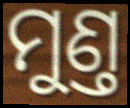
ମୁଣ୍ତ